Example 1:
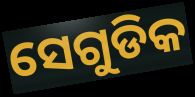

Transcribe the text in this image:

ସେଗୁଡିକ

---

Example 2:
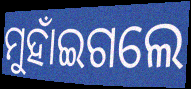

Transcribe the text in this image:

ମୁହାଁଇଗଲେ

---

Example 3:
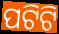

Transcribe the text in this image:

ପଟିଟି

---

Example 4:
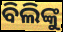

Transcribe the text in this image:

ବିଲିଙ୍କୁ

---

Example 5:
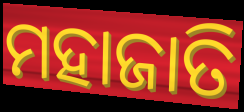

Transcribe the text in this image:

ମହାଜାତି